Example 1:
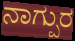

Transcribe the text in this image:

ನಾಗ್ಪುರ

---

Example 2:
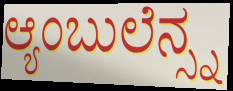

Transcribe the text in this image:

ಆ್ಯಂಬುಲೆನ್ಸ್ನ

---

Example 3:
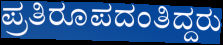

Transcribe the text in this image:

ಪ್ರತಿರೂಪದಂತಿದ್ದರು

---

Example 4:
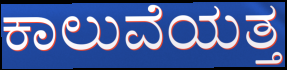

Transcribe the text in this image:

ಕಾಲುವೆಯತ್ತ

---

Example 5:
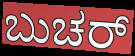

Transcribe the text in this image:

ಬುಚರ್